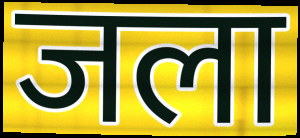
जला